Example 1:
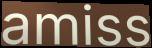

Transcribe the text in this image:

amiss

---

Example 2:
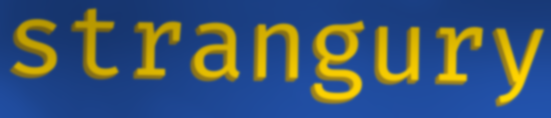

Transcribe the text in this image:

strangury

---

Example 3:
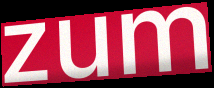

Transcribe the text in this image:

zum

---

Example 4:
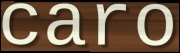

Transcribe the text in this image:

caro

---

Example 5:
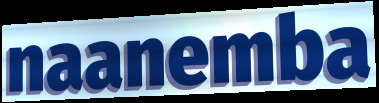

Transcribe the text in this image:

naanemba